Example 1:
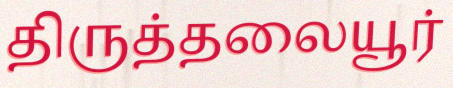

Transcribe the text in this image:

திருத்தலையூர்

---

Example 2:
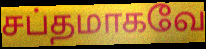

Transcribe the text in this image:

சப்தமாகவே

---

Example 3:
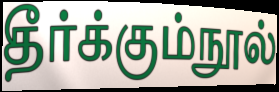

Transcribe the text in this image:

தீர்க்கும்நூல்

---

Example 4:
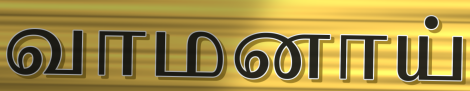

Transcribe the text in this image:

வாமனாய்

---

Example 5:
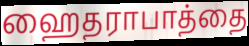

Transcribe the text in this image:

ஹைதராபாத்தை